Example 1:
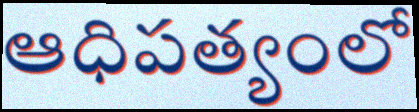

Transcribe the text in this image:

ఆధిపత్యంలో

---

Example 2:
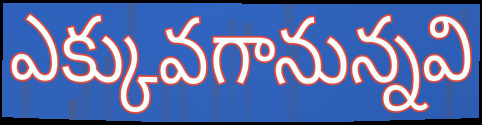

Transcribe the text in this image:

ఎక్కువగానున్నవి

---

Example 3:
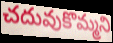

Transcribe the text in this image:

చదువుకొమ్మని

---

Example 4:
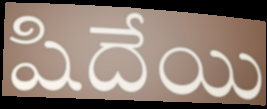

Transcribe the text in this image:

షిదేయి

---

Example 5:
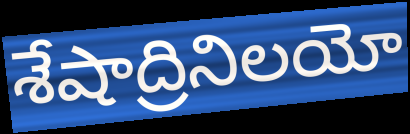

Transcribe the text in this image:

శేషాద్రినిలయో